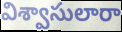
విశ్వాసులారా